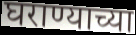
घराण्याच्या